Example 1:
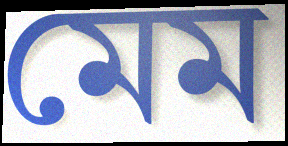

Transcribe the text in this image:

মেম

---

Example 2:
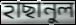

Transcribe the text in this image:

হাছানুল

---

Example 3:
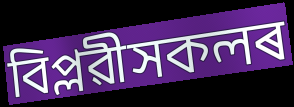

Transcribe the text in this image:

বিপ্লৱীসকলৰ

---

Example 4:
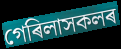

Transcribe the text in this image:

গেৰিলাসকলৰ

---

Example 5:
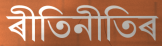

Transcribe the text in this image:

ৰীতিনীতিৰ